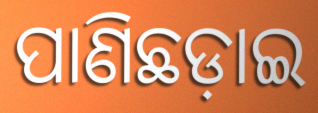
ପାଣିଛଡ଼ାଇ